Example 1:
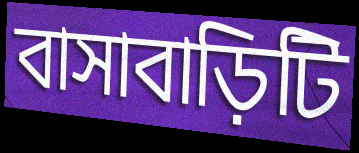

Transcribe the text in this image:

বাসাবাড়িটি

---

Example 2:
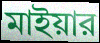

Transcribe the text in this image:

মাইয়ার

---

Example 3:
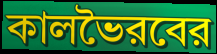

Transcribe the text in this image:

কালভৈরবের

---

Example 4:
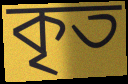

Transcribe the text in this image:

কৃত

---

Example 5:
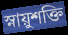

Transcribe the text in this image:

স্নায়ুশক্তি